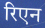
रिएन